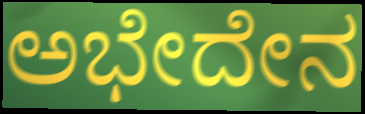
ಅಭೇದೇನ